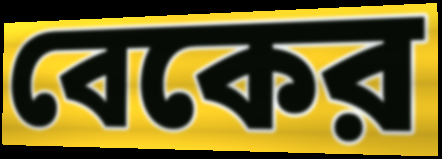
বেকের